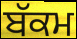
ਬੱਕਮ